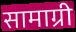
सामाग्री